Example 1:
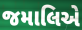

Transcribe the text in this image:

જમાલિએ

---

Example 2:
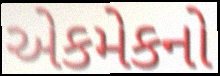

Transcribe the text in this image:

એકમેકનો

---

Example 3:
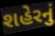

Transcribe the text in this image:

શહેરનું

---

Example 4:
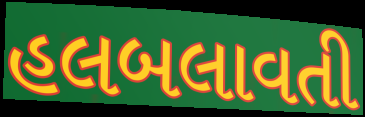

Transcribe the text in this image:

હલબલાવતી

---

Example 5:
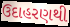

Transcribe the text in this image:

ઉદાહરણથી